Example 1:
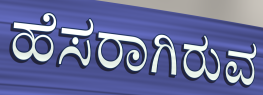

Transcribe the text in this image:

ಹೆಸರಾಗಿರುವ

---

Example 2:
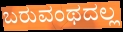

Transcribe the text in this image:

ಬರುವಂಥದಲ್ಲ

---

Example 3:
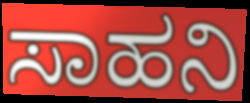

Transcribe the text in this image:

ಸಾಹನಿ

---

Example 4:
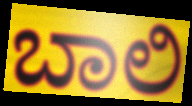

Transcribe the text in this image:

ಬಾಲಿ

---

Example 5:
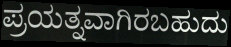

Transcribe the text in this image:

ಪ್ರಯತ್ನವಾಗಿರಬಹುದು